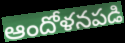
ఆందోళనపడి